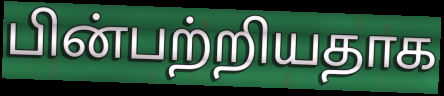
பின்பற்றியதாக